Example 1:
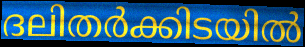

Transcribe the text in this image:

ദലിതർക്കിടയിൽ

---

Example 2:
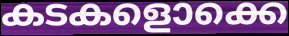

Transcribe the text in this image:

കടകളൊക്കെ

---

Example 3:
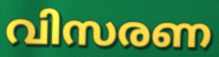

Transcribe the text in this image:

വിസരണ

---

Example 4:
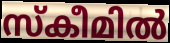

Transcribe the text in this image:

സ്കീമിൽ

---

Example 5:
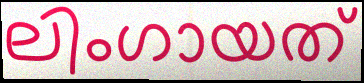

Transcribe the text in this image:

ലിംഗായത്